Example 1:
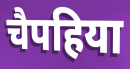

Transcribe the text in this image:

चैपहिया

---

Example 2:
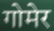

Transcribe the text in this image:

गोमेर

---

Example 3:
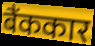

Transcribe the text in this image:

बैंककार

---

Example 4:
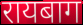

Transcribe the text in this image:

रायबाग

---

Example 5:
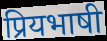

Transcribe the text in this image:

प्रियभाषी